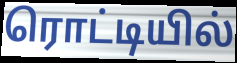
ரொட்டியில்